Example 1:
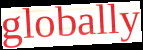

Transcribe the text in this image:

globally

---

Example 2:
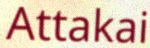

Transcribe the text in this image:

Attakai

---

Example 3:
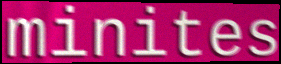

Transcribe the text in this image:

minites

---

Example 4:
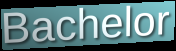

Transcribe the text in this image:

Bachelor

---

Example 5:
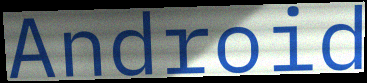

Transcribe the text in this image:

Android